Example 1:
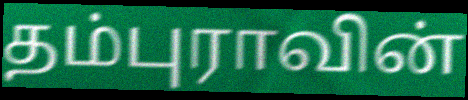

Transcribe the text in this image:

தம்புராவின்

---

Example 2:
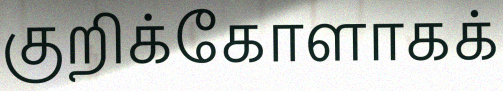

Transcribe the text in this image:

குறிக்கோளாகக்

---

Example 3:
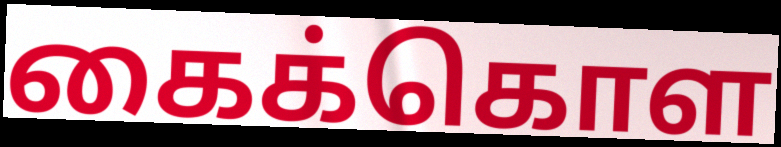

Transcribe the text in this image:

கைக்கொள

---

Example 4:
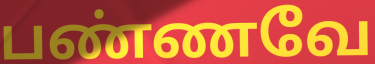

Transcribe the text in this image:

பண்ணவே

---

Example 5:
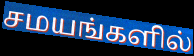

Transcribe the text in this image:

சமயங்களில்